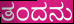
ತಂದನು